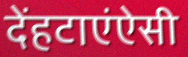
देंहटाएंऐसी